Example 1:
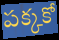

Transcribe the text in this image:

పక్కకో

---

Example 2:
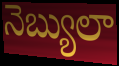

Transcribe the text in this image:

నెబ్యులా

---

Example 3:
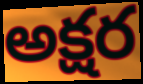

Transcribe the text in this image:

అక్షర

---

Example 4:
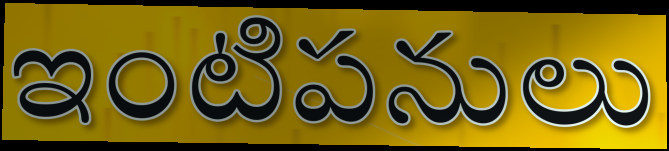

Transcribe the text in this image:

ఇంటిపనులు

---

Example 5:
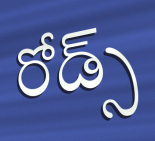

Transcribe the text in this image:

రోడ్స్